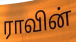
ராவின்